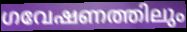
ഗവേഷണത്തിലും